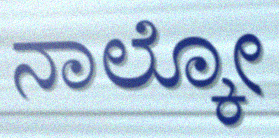
ನಾಲ್ಕೋ